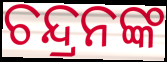
ଚନ୍ଦ୍ରନଙ୍କ